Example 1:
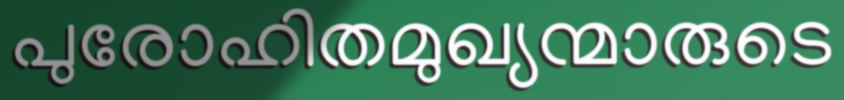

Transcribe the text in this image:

പുരോഹിതമുഖ്യന്മാരുടെ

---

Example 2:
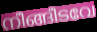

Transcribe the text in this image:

നീങ്ങീടവേ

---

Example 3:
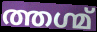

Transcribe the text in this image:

ത്തഗ്മ്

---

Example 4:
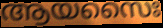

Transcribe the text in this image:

ആയസൈഃ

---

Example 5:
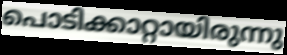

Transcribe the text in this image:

പൊടിക്കാറ്റായിരുന്നു